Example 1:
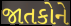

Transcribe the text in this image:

જાતકોને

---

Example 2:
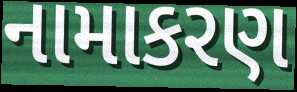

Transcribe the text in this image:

નામાકરણ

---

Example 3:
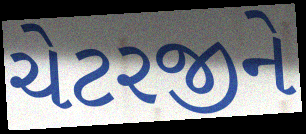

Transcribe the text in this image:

ચેટરજીને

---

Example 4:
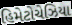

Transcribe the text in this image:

હિમેટોચેઝિયા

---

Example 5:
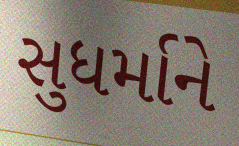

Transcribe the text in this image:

સુધર્માને